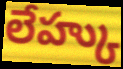
లేహ్కు